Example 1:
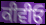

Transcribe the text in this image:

ਕੀਵੀਓ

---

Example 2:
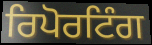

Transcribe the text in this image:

ਰਿਪੋਰਟਿੰਗ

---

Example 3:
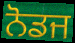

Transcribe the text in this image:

ਨੋਡਜ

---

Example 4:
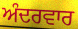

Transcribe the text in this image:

ਅੰਦਰਵਾਰ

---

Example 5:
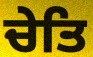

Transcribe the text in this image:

ਚੇਤਿ